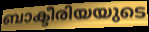
ബാക്ടീരിയയുടെ